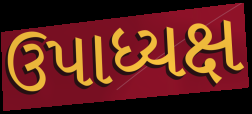
ઉપાધ્યક્ષ